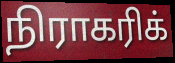
நிராகரிக்